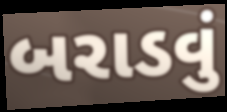
બરાડવું